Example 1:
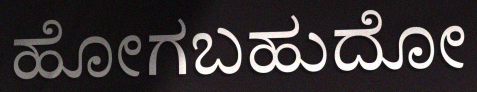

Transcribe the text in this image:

ಹೋಗಬಹುದೋ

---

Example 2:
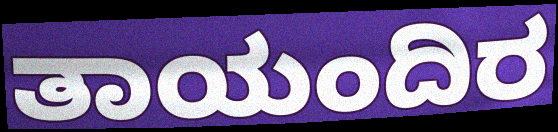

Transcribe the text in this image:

ತಾಯಂದಿರ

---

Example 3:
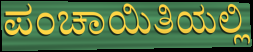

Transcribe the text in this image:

ಪಂಚಾಯಿತಿಯಲ್ಲಿ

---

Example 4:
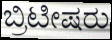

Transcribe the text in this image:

ಬ್ರಿಟೀಷರು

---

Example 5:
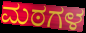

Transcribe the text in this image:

ಮಠಗಳ